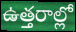
ఉత్తరాల్లో